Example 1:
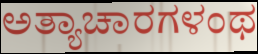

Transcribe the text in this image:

ಅತ್ಯಾಚಾರಗಳಂಥ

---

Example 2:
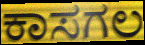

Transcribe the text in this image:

ಕಾಸಗಲ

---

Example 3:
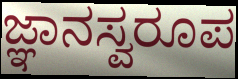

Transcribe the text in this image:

ಜ್ಞಾನಸ್ವರೂಪ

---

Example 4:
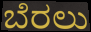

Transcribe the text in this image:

ಬೆರಲು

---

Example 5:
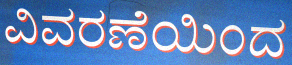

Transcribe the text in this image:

ವಿವರಣೆಯಿಂದ